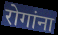
रोगांना